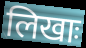
लिखाः